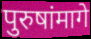
पुरुषांमागे